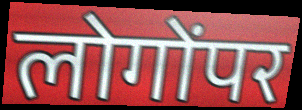
लोगोंपर